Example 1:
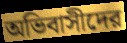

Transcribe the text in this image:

অভিবাসীদের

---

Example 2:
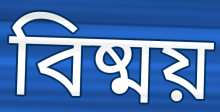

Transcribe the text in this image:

বিষ্ময়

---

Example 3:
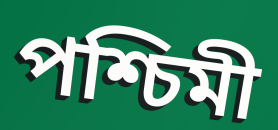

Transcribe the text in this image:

পশ্চিমী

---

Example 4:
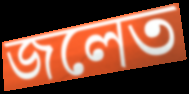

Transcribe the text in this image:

জলেত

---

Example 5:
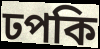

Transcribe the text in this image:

ঢপকি